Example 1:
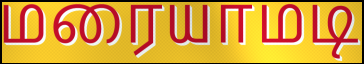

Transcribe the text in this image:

மரையாமடி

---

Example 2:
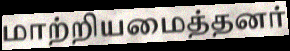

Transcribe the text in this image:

மாற்றியமைத்தனர்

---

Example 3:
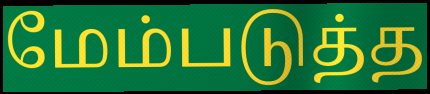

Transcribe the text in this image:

மேம்படுத்த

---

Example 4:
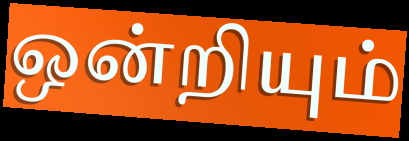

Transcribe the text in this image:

ஒன்றியும்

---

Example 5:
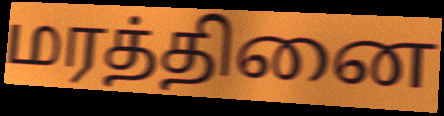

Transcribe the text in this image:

மரத்தினை